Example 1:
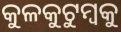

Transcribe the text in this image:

କୁଳକୁଟୁମ୍ବକୁ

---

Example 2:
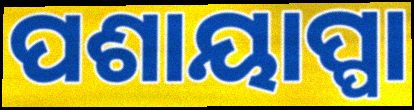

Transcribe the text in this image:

ପଶାୟାପ୍ପା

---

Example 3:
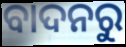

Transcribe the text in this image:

ବାଦନରୁ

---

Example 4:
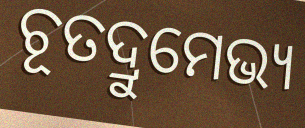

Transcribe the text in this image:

ଚୂତଦ୍ରୁମେଭ୍ୟ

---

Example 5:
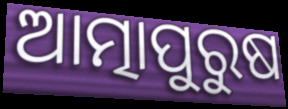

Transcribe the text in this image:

ଆତ୍ମାପୁରୁଷ